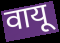
वायू